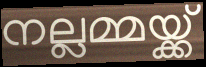
നല്ലമ്മയ്ക്ക്